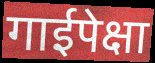
गाईपेक्षा